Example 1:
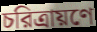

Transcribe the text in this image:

চরিত্রায়ণে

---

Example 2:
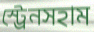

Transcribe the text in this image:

স্ট্রেনসহাম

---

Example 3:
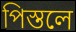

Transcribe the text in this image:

পিস্তলে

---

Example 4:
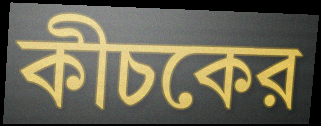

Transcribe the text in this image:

কীচকের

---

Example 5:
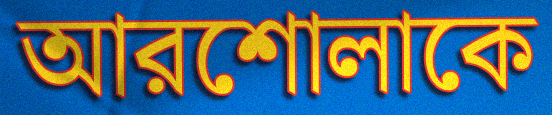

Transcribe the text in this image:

আরশোলাকে